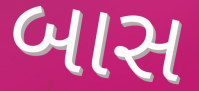
બાસ